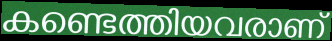
കണ്ടെത്തിയവരാണ്